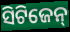
ସିଟିଜେନ୍